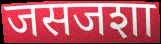
जसजशा